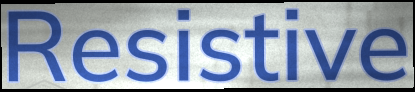
Resistive